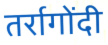
तर्रागोंदी